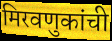
मिरवणुकांची